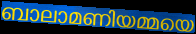
ബാലാമണിയമ്മയെ